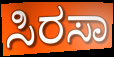
ಸಿರಸಾ